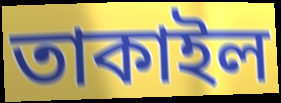
তাকাইল